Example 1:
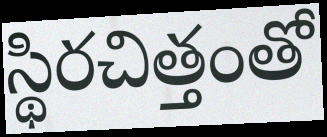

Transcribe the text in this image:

స్థిరచిత్తంతో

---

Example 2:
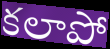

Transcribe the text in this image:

కలాపో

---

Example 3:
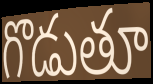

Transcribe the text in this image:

గొడుతూ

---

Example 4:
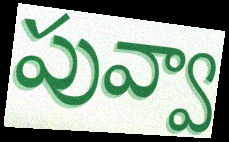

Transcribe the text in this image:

పువ్వా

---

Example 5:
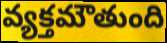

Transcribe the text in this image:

వ్యక్తమౌతుంది